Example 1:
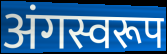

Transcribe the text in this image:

अंगस्वरूप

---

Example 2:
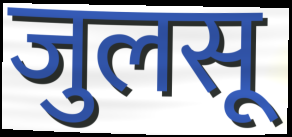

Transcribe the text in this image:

जुलसू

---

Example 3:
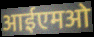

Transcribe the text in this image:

आईएमओ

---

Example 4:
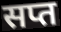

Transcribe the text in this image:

सप्त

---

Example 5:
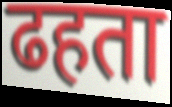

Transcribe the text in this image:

ढहता